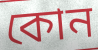
কোন